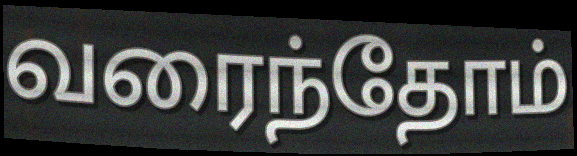
வரைந்தோம்